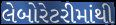
લેબોરેટરીમાંથી